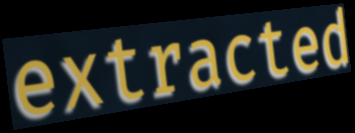
extracted